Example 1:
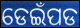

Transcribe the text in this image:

ଡେଇଁପଡ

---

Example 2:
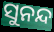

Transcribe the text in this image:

ସୁନନ୍ଦ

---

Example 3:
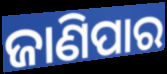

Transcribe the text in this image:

ଜାଣିପାର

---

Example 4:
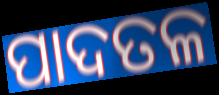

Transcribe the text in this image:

ପାଦତଳ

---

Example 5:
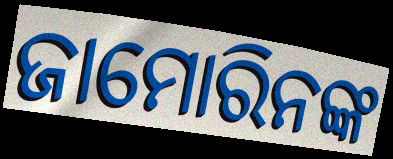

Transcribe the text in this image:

ଜାମୋରିନଙ୍କ